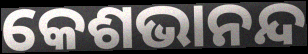
କେଶଭାନନ୍ଦ